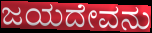
ಜಯದೇವನು